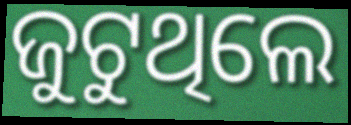
ଜୁଟୁଥିଲେ